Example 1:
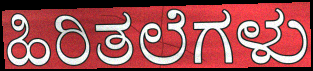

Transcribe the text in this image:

ಹಿರಿತಲೆಗಳು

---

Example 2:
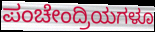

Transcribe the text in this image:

ಪಂಚೇಂದ್ರಿಯಗಳೂ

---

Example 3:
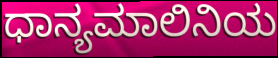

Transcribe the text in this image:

ಧಾನ್ಯಮಾಲಿನಿಯ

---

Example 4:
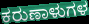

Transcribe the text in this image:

ಕರುಣಾಳುಗಳ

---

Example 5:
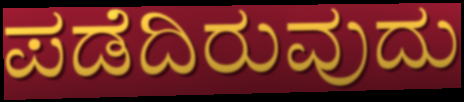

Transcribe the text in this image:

ಪಡೆದಿರುವುದು